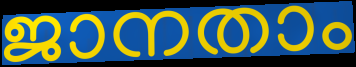
ജാനതാം